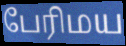
பேரிமய